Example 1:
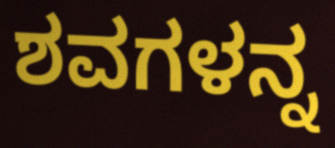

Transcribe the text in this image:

ಶವಗಳನ್ನ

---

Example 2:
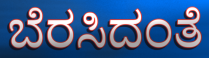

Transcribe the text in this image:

ಬೆರಸಿದಂತೆ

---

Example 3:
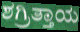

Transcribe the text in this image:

ಶಗ್ರಿತ್ತಾಯ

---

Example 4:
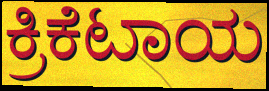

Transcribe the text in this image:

ಕ್ರಿಕೆಟಾಯ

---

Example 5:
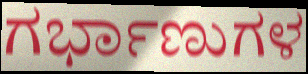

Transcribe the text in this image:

ಗರ್ಭಾಣುಗಳ